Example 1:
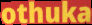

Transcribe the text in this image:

othuka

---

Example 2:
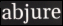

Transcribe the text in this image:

abjure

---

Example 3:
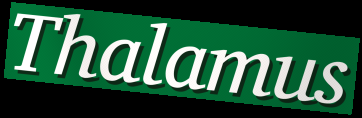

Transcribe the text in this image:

Thalamus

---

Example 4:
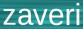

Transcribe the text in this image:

zaveri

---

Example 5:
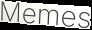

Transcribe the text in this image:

Memes